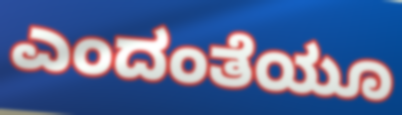
ಎಂದಂತೆಯೂ